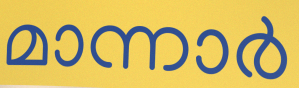
മാന്നാർ